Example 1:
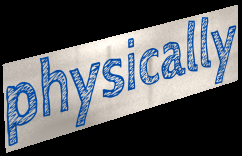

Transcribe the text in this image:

physically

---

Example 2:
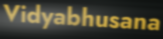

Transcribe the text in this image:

Vidyabhusana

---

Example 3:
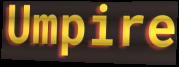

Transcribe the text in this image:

Umpire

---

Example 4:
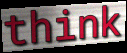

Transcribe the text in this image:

think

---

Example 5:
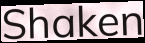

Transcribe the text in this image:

Shaken